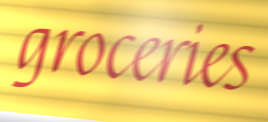
groceries